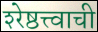
श्रेष्ठत्त्वाची